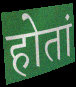
होतां